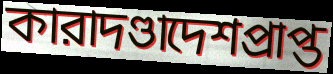
কারাদণ্ডাদেশপ্রাপ্ত